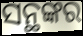
ସନ୍ଥଙ୍କର